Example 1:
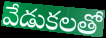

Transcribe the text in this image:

వేడుకలతో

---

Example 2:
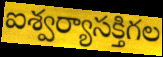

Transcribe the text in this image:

ఐశ్వర్యాసక్తిగల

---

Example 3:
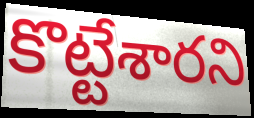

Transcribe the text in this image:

కొట్టేశారని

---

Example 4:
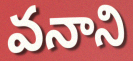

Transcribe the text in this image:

వనాని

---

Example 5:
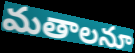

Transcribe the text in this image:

మతాలనూ